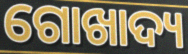
ଗୋଖାଦ୍ୟ